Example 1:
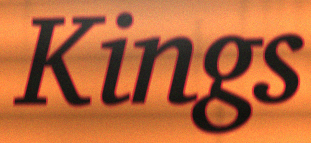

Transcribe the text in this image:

Kings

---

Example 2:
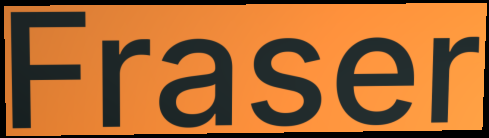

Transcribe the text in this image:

Fraser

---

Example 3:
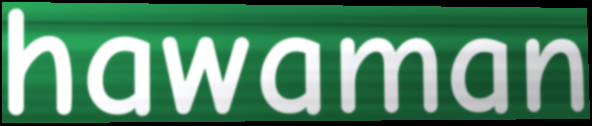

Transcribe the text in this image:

hawaman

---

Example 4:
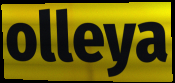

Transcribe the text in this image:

olleya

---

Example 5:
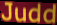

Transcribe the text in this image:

Judd